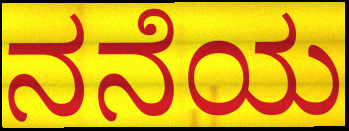
ನನೆಯ